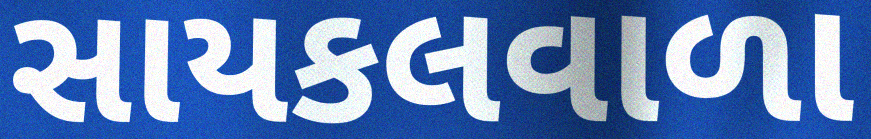
સાયકલવાળા